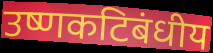
उष्णकटिबंधीय